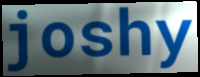
joshy